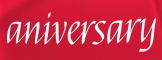
aniversary